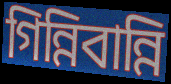
গিন্নিবান্নি